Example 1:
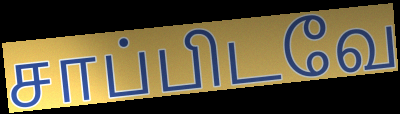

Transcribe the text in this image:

சாப்பிடவே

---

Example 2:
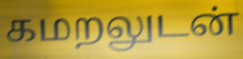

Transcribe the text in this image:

கமறலுடன்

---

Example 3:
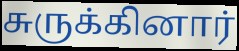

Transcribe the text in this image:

சுருக்கினார்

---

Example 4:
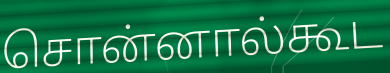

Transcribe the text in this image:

சொன்னால்கூட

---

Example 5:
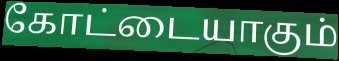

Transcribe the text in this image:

கோட்டையாகும்